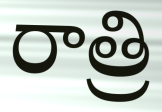
రాత్రి